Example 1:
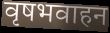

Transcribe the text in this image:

वृषभवाहन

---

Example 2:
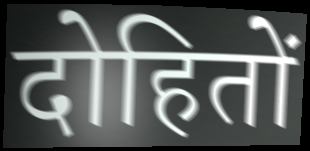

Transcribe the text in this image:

दोहितों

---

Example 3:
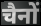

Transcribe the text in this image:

चैनों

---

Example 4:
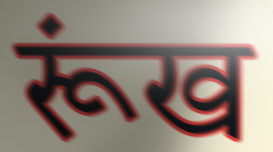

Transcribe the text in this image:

रूंख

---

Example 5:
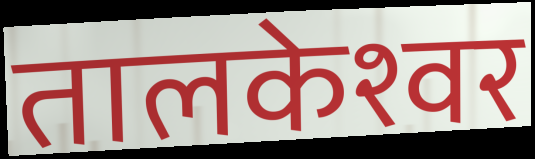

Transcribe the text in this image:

तालकेश्वर